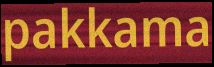
pakkama